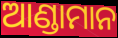
ଆଣ୍ଡାମାନ